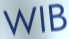
WIB